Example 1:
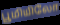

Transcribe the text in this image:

பூமியிலோ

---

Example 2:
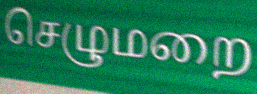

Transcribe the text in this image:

செழுமறை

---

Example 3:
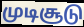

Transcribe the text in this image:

முடிசூடு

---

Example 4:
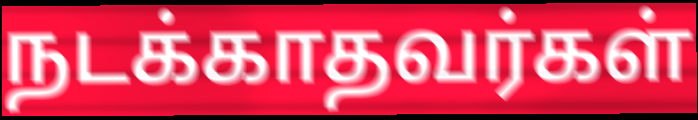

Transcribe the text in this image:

நடக்காதவர்கள்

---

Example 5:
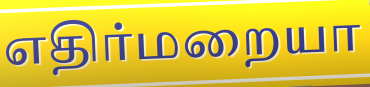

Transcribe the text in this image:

எதிர்மறையா